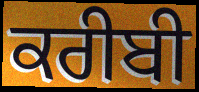
ਕਰੀਬੀ